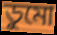
ডুমো